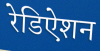
रेडिऐशन